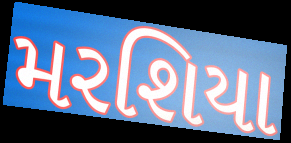
મરશિયા